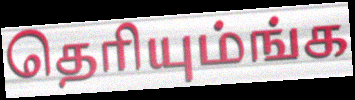
தெரியும்ங்க